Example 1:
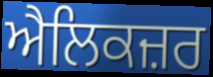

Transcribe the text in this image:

ਐਲਿਕਜ਼ਰ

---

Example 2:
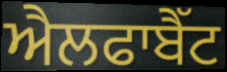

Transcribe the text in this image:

ਐਲਫਾਬੈੱਟ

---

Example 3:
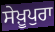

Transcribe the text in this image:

ਸੇਖ਼ੂਪੁਰਾ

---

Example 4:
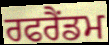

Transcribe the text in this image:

ਰਫਰੈਂਡਮ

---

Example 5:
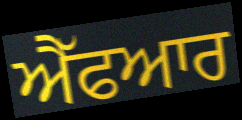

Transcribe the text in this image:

ਐੱਫਆਰ